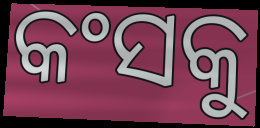
କଂସକୁ